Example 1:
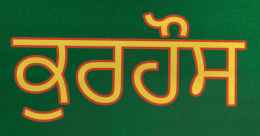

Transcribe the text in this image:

ਕੁਰਹੌਸ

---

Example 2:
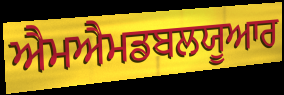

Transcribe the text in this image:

ਐਮਐਮਡਬਲਯੂਆਰ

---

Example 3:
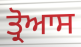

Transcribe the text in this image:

ਤ੍ਰੋਆਸ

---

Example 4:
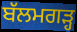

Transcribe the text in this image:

ਬੱਲਮਗੜ੍ਹ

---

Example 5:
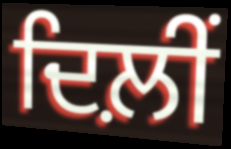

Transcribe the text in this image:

ਦਿਲ਼ੀਂ